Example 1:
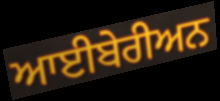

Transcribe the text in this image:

ਆਈਬੇਰੀਅਨ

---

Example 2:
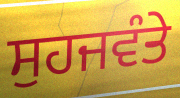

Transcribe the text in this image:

ਸੁਹਜਵੰਤੇ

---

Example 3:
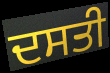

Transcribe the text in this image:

ਦਸਤੀ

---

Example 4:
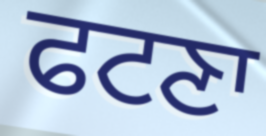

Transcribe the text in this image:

ਫਟਣਾ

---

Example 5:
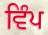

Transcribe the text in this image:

ਵਿੰਪ